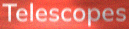
Telescopes